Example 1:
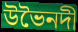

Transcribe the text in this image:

উভৈনদী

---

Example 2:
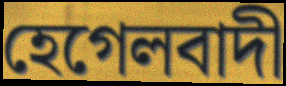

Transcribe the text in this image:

হেগেলবাদী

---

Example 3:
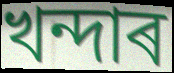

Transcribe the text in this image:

খন্দাৰ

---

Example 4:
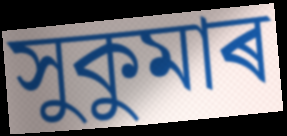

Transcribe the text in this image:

সুকুমাৰ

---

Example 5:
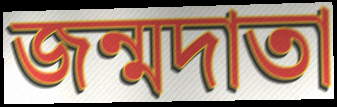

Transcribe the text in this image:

জন্মদাতা